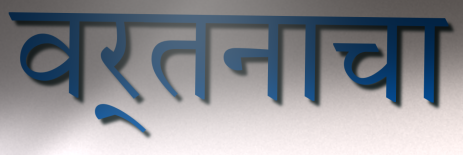
वर्तनाचा